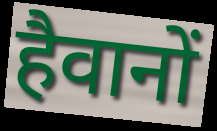
हैवानों